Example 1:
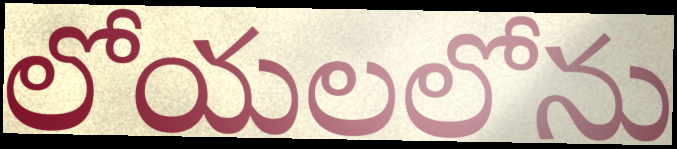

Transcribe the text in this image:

లోయలలోను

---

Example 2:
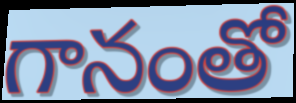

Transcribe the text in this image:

గానంతో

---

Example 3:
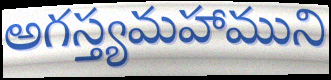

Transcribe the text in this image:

అగస్త్యమహాముని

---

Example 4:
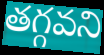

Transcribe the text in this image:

తగ్గవని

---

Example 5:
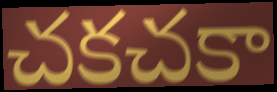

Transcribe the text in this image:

చకచకా